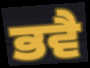
ਭਵੈ